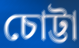
চোট্টা